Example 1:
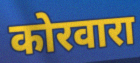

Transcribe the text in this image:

कोरवारा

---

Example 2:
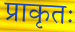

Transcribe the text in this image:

प्राकृतः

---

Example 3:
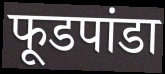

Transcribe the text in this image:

फूडपांडा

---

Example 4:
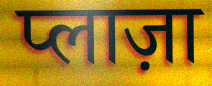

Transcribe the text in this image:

प्लाज़ा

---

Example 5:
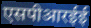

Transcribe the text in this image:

एसपीआरईई